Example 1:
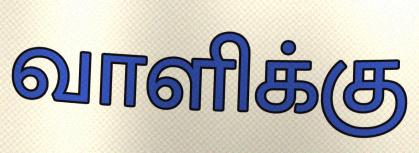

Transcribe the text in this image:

வாளிக்கு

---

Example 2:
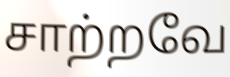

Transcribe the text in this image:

சாற்றவே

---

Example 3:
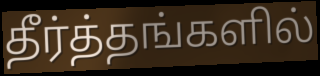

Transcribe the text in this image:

தீர்த்தங்களில்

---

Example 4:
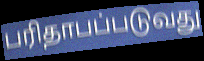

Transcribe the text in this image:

பரிதாபப்படுவது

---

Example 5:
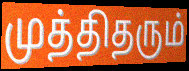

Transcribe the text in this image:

முத்திதரும்